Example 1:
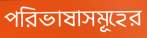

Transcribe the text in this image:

পরিভাষাসমূহের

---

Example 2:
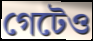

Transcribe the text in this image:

গেটেও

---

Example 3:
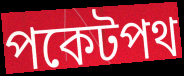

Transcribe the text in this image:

পকেটপথ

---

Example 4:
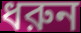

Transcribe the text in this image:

ধরুন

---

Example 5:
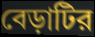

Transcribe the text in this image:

বেড়াটির